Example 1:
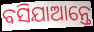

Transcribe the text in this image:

ବସିଯାଆନ୍ତେ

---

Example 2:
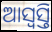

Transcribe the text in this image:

ଆସ୍ୱସ୍ତି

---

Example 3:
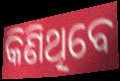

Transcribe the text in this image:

କିଣିଥିବେ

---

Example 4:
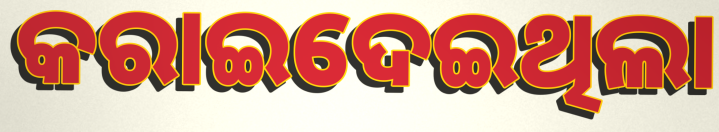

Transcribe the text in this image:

କରାଇଦେଇଥିଲା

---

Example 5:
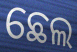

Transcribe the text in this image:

ଛେଲ